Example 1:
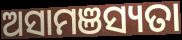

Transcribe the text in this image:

ଅସାମଞସ୍ୟତା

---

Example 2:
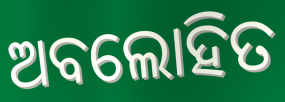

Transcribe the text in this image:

ଅବଲୋହିତ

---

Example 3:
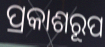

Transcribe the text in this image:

ପ୍ରକାଶରୂପ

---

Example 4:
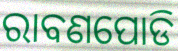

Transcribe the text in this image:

ରାବଣପୋଡି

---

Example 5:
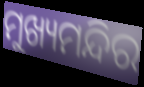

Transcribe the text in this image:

ମୁଖ୍ୟମନ୍ଦିର